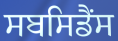
ਸਬਸਿਡੈਂਸ